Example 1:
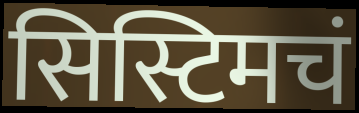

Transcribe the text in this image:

सिस्टिमचं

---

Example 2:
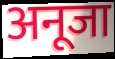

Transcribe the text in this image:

अनूजा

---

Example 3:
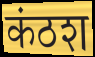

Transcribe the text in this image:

कंठश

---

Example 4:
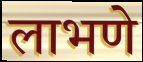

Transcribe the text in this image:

लाभणे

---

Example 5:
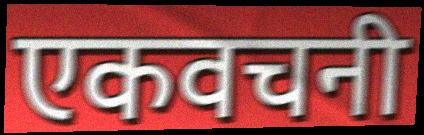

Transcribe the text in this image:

एकवचनी